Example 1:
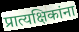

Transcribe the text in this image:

प्रात्यक्षिकांना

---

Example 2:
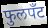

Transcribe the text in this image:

फुलपँट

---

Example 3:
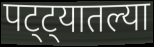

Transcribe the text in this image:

पट्ट्यातल्या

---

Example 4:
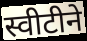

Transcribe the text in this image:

स्वीटीने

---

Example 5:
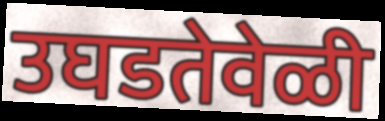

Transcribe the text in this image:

उघडतेवेळी